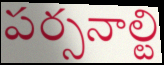
పర్సనాల్టి